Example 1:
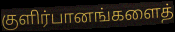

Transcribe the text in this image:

குளிர்பானங்களைத்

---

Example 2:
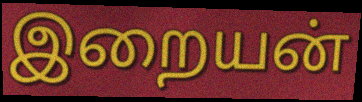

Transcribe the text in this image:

இறையன்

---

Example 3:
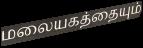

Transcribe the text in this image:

மலையகத்தையும்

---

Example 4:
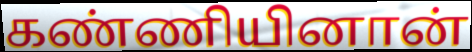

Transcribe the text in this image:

கண்ணியினான்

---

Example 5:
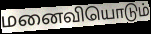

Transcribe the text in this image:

மனைவியொடும்